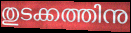
തുടക്കത്തിനു